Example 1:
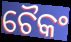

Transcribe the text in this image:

ଚୈକଂ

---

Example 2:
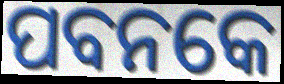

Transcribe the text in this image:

ପବନକେ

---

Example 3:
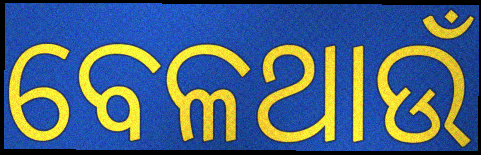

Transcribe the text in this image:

ବେଳଥାଉଁ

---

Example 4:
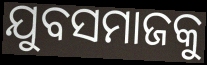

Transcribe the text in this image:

ଯୁବସମାଜକୁ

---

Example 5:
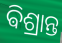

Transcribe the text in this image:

ଵିଶ୍ରାନ୍ତ